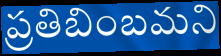
ప్రతిబింబమని